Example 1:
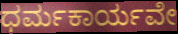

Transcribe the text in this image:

ಧರ್ಮಕಾರ್ಯವೇ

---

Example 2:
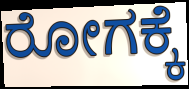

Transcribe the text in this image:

ರೋಗಕ್ಕೆ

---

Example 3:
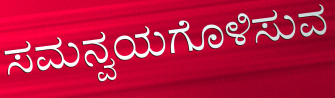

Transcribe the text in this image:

ಸಮನ್ವಯಗೊಳಿಸುವ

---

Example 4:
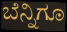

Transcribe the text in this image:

ಬೆನ್ನಿಗೂ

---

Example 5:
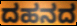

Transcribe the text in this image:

ದಹನದ